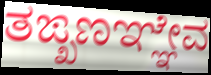
ತಙ್ಖಣಞ್ಞೇವ